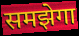
समझेगा